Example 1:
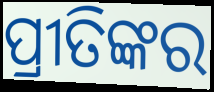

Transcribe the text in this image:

ପ୍ରୀତିଙ୍କର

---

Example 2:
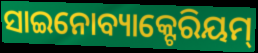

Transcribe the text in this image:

ସାଇନୋବ୍ୟାକ୍ଟେରିୟମ୍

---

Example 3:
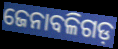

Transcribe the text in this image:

ଜେନାବଳିଗଡ଼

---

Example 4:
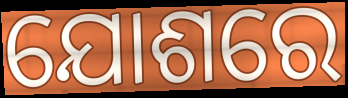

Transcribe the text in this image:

ଯୋଶରେ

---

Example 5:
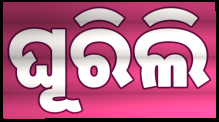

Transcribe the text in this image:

ଘୂରିଲି